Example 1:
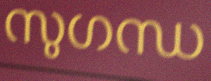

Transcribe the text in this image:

സുഗന്ധ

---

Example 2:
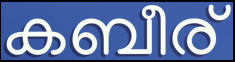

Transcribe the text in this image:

കബീര്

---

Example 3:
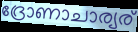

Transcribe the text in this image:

ദ്രോണാചാര്യര്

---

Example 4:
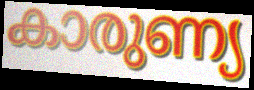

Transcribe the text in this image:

കാരുണ്യ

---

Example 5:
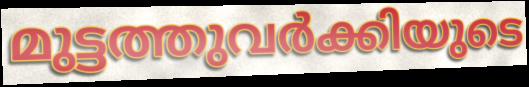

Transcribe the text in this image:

മുട്ടത്തുവർക്കിയുടെ